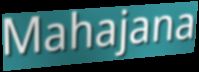
Mahajana